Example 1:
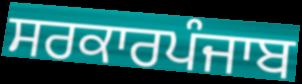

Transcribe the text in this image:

ਸਰਕਾਰਪੰਜਾਬ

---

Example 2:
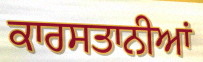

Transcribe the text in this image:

ਕਾਰਸਤਾਨੀਆਂ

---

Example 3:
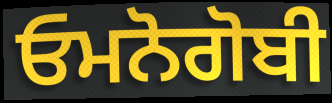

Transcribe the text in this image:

ਓਮਨੋਗੋਬੀ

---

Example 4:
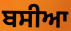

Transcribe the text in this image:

ਬਸੀਆ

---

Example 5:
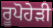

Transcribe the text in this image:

ਰੂਪੋਹੇੜੀ